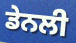
ਡੇਨਲੀ